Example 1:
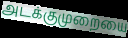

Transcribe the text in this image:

அடக்குமுறையை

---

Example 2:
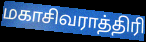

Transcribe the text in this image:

மகாசிவராத்திரி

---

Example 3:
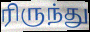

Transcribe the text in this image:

ரிருந்து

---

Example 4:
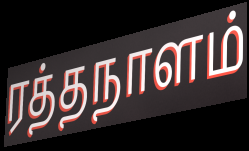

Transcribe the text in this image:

ரத்தநாளம்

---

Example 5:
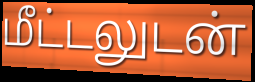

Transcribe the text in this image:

மீட்டலுடன்